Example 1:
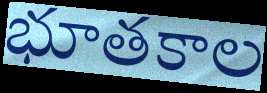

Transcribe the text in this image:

భూతకాల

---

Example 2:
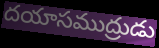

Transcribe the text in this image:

దయాసముద్రుడు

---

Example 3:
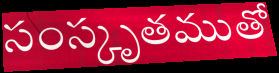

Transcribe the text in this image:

సంస్కృతముతో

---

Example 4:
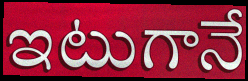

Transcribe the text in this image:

ఇటుగానే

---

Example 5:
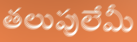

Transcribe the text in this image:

తలుపులేమీ